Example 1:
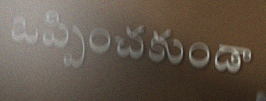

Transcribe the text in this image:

ఒప్పించకుండా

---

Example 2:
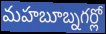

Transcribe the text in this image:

మహబూబ్నగర్లో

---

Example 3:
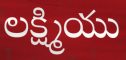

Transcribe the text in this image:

లక్ష్మియు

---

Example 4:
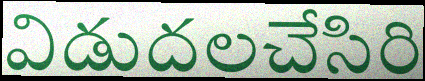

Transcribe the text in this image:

విడుదలచేసిరి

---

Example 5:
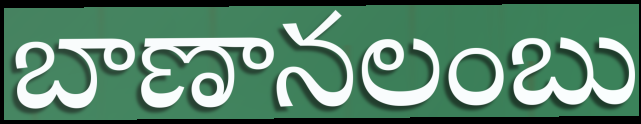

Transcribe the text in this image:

బాణానలంబు